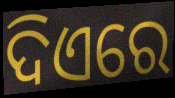
ଦିଏରେ